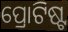
ପ୍ରୋଟିଷ୍ଟ